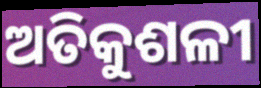
ଅତିକୁଶଳୀ